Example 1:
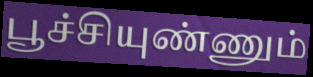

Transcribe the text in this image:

பூச்சியுண்ணும்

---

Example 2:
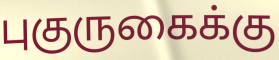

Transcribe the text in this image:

புகுருகைக்கு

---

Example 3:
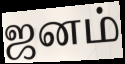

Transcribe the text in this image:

ஜனம்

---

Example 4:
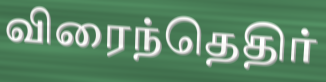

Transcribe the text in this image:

விரைந்தெதிர்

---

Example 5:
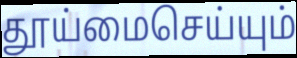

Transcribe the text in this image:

தூய்மைசெய்யும்